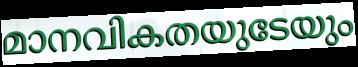
മാനവികതയുടേയും